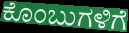
ಕೊಂಬುಗಳಿಗೆ